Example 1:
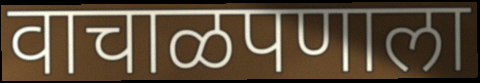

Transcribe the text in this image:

वाचाळपणाला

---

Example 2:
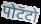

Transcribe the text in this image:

पोटॅटो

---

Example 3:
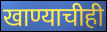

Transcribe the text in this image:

खाण्याचीही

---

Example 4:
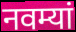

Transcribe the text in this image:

नवम्यां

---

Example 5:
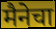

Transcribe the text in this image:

मैनेचा